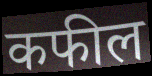
कफील